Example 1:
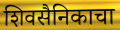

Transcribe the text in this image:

शिवसैनिकाचा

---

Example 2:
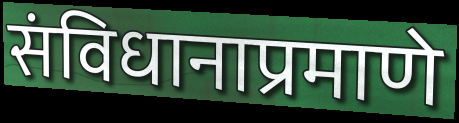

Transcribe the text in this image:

संविधानाप्रमाणे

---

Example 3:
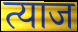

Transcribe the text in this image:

त्याज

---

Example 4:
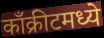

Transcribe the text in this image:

काँक्रीटमध्ये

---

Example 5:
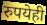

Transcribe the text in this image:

रुपयेही